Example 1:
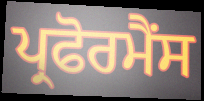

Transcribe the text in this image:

ਪ੍ਰਫੋਰਮੈਂਸ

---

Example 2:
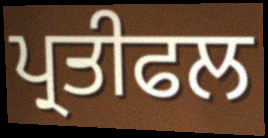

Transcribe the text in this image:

ਪ੍ਰਤੀਫਲ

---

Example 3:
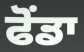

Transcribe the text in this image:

ਫੋਂਡਾ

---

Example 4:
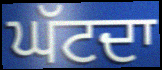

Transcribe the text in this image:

ਘੱਟਦਾ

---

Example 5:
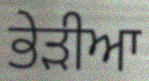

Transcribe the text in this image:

ਭੇੜੀਆ